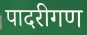
पादरीगण